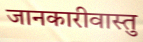
जानकारीवास्तु